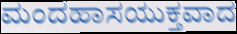
ಮಂದಹಾಸಯುಕ್ತವಾದ